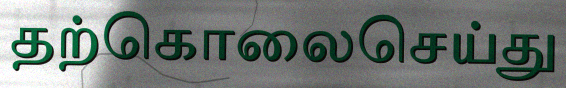
தற்கொலைசெய்து